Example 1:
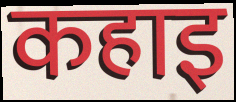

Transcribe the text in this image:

कहाइ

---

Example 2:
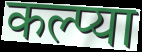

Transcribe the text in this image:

कल्प्या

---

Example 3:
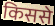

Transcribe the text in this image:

किससे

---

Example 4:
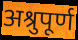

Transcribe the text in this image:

अश्रुपूर्ण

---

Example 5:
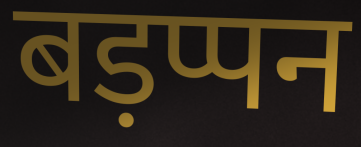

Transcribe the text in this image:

बड़प्पन